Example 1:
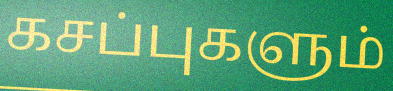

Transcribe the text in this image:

கசப்புகளும்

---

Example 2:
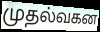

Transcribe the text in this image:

முதல்வகன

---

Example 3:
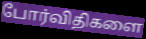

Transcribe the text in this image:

போர்விதிகளை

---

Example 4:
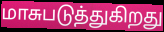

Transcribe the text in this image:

மாசுபடுத்துகிறது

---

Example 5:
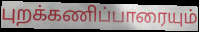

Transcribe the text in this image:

புறக்கணிப்பாரையும்